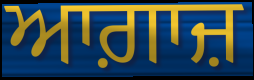
ਆਗ਼ਾਜ਼